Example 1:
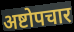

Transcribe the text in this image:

अष्टोपचार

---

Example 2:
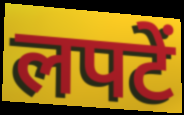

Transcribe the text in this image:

लपटें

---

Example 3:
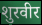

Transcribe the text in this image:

शुरवीर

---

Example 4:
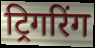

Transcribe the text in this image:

ट्रिगरिंग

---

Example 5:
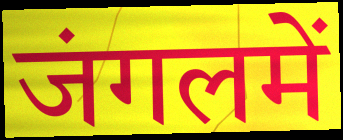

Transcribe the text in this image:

जंगलमें